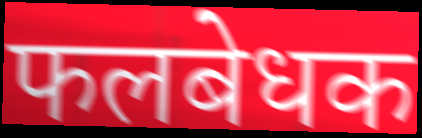
फलबेधक